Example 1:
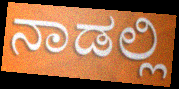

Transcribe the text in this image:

ನಾಡಲ್ಲಿ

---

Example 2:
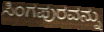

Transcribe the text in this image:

ಸಿಂಗಪುರವನ್ನು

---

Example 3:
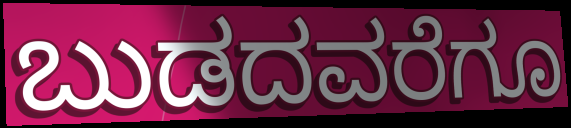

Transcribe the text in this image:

ಬುಡದವರೆಗೂ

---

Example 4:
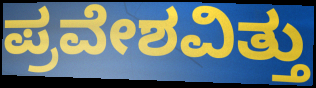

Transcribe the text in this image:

ಪ್ರವೇಶವಿತ್ತು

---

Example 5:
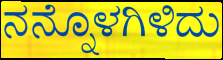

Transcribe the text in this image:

ನನ್ನೊಳಗಿಳಿದು